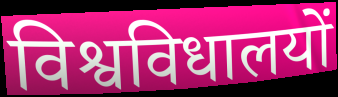
विश्वविधालयों